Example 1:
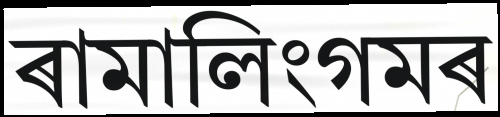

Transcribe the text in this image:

ৰামালিংগমৰ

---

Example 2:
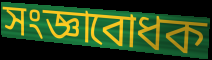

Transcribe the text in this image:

সংজ্ঞাবোধক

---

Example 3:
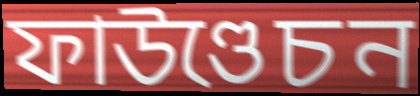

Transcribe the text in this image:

ফাউণ্ডেচন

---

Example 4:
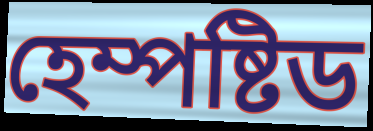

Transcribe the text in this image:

হেম্পষ্টিড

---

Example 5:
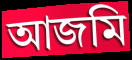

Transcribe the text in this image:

আজমি